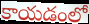
కాయడంలో